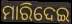
ମାରିଦେଇ